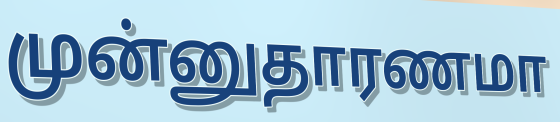
முன்னுதாரணமா